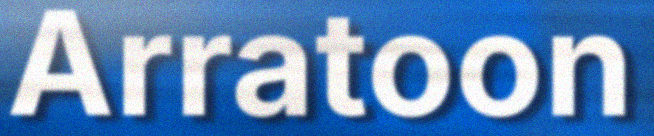
Arratoon